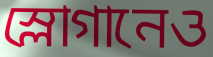
স্লোগানেও